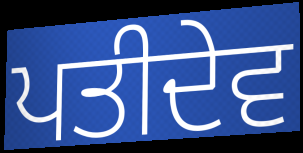
ਪਤੀਦੇਵ